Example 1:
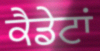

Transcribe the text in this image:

ਕੈਡੇਟਾਂ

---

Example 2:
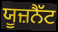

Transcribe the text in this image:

ਯੂਜ਼ਨੈੱਟ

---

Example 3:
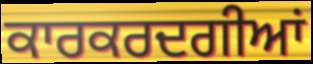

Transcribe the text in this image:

ਕਾਰਕਰਦਗੀਆਂ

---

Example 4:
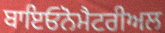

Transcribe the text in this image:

ਬਾਇਓਨੋਮੈਟਰੀਅਲ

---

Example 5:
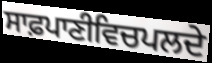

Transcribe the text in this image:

ਸਾਫ਼ਪਾਣੀਵਿਚਪਲਦੇ